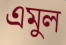
এমুল